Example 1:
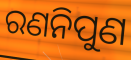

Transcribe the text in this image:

ରଣନିପୁଣ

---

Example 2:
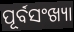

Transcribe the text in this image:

ପୂର୍ବସଂଖ୍ୟା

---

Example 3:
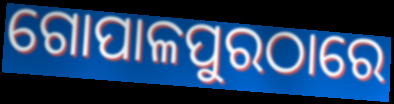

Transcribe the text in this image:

ଗୋପାଳପୁରଠାରେ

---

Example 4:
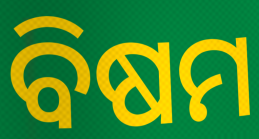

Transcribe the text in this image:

ବିଷମ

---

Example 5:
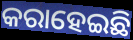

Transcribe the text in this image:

କରାହେଇଛି